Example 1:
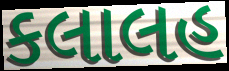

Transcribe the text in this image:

કલાલહ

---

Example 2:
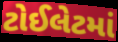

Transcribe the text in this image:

ટોઈલેટમાં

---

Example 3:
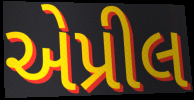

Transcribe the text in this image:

એપ્રીલ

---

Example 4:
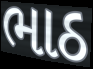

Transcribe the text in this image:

ભાઠ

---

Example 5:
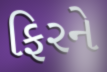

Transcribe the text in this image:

ફિરને